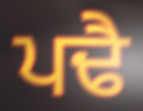
ਪਢੈ